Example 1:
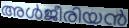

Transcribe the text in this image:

അൾജീരിയൻ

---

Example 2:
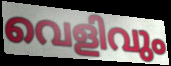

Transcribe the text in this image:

വെളിവും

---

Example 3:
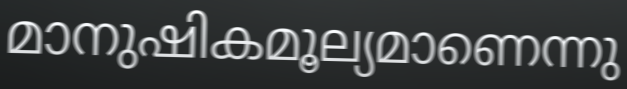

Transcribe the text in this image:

മാനുഷികമൂല്യമാണെന്നു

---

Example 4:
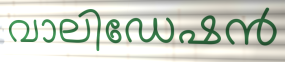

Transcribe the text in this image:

വാലിഡേഷൻ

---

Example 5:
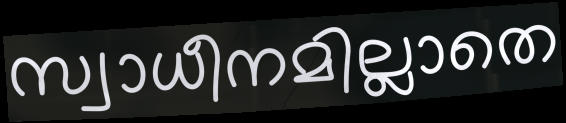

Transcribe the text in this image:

സ്വാധീനമില്ലാതെ